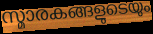
സ്മാരകങ്ങളുടെയും